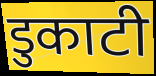
डुकाटी